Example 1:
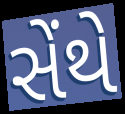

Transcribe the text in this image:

સેંથે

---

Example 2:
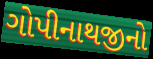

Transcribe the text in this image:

ગોપીનાથજીનો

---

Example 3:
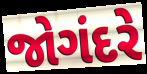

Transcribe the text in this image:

જોગંદરે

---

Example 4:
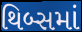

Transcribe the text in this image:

થિબ્સમાં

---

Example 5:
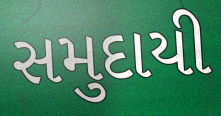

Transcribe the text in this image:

સમુદાયી